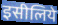
इसीलिये